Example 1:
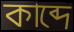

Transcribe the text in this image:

কাব্দে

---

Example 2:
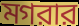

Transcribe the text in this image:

মগরার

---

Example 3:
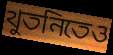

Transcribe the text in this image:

থুতনিতেও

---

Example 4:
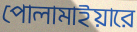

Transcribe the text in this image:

পোলামাইয়ারে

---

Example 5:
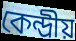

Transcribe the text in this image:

কেন্দ্রীয়